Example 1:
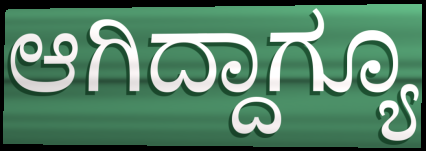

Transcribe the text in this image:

ಆಗಿದ್ದಾಗ್ಯೂ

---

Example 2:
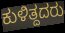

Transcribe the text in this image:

ಕುಳಿತ್ದದರು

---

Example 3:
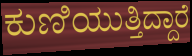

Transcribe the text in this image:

ಕುಣಿಯುತ್ತಿದ್ದಾರೆ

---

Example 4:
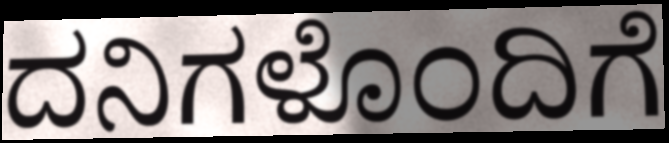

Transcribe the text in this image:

ದನಿಗಳೊಂದಿಗೆ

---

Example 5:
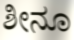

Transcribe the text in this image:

ಶೀನೂ